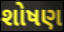
શોષણ